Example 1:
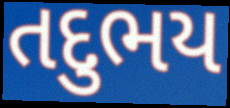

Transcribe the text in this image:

તદુભય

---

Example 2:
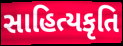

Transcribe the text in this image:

સાહિત્યકૃતિ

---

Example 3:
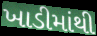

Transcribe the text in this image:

ખાડીમાંથી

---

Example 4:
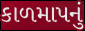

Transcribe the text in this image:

કાળમાપનું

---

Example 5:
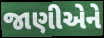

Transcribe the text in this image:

જાણીએને